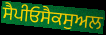
ਸੈਪੀਓਸੈਕਸੁਅਲ